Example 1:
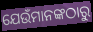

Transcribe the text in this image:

ଯେଉଁମାନଙ୍କଠାରୁ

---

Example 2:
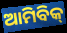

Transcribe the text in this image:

ଆମିବିକ୍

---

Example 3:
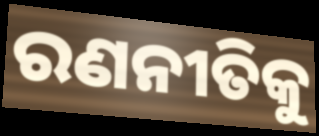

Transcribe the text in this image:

ରଣନୀତିକୁ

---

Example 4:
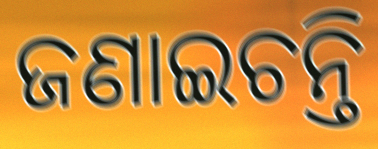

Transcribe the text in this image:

ଜଣାଇଚନ୍ତି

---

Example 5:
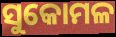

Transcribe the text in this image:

ସୁକୋମଳ